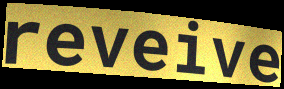
reveive